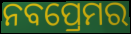
ନବପ୍ରେମର